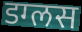
डग्लस